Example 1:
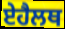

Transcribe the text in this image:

ਏਹੈਲਥ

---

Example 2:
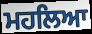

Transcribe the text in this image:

ਮਹਲਿਆ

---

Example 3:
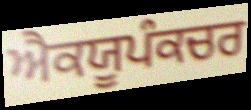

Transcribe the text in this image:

ਐਕਯੂਪੰਕਚਰ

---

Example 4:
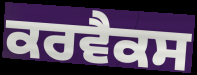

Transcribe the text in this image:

ਕਰਵੈਕਸ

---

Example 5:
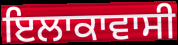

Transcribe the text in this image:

ਇਲਾਕਾਵਾਸੀ